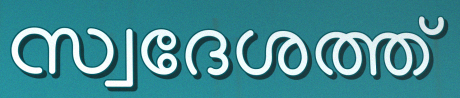
സ്വദേശത്ത്